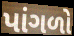
પાંગળો